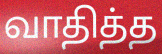
வாதித்த